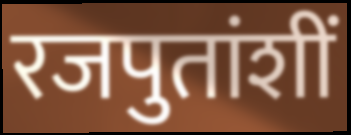
रजपुतांशीं